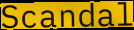
Scandal